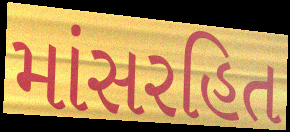
માંસરહિત